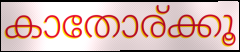
കാതോര്ക്കൂ